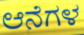
ಆನೆಗಳ